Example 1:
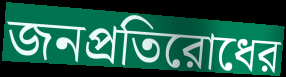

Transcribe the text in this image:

জনপ্রতিরোধের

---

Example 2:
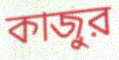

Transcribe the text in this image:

কাজুর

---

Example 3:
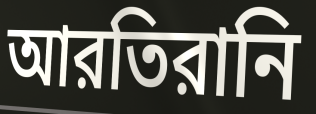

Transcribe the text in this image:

আরতিরানি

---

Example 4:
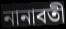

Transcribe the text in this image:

নানাবতী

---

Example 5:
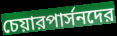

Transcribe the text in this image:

চেয়ারপার্সনদের